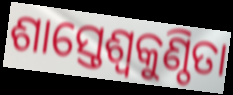
ଶାସ୍ତେଶ୍ବକୁଣ୍ଠିତା